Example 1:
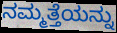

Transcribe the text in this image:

ನಮ್ಮತ್ತೆಯನ್ನು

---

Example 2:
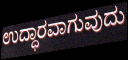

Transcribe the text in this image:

ಉದ್ಧಾರವಾಗುವುದು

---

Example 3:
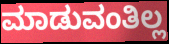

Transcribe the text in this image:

ಮಾಡುವಂತಿಲ್ಲ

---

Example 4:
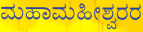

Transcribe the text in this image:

ಮಹಾಮಹೀಶ್ವರರ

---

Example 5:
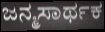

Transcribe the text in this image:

ಜನ್ಮಸಾರ್ಥಕ